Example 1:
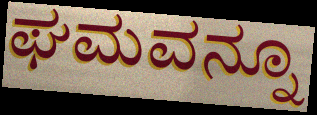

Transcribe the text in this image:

ಘಮವನ್ನೂ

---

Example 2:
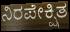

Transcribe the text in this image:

ನಿರಪೇಕ್ಷಿತ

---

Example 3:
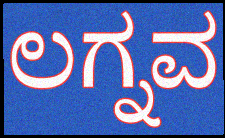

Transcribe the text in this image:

ಲಗ್ನವ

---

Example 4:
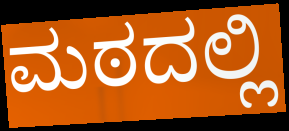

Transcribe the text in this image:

ಮಠದಲ್ಲಿ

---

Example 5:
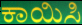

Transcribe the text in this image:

ಕಾಯಿಸಿ